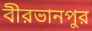
বীরভানপুর